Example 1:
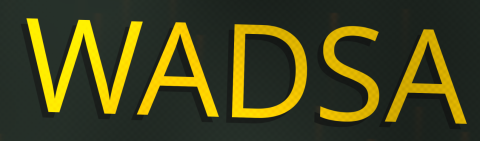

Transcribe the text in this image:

WADSA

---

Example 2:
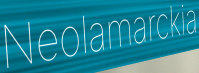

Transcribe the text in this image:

Neolamarckia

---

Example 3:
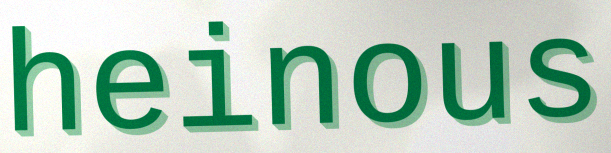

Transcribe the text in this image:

heinous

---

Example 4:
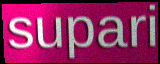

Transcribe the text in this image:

supari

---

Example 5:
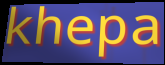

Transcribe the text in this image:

khepa